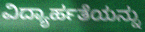
ವಿದ್ಯಾರ್ಹತೆಯನ್ನು